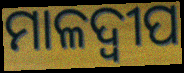
ମାଳଦ୍ଵୀପ